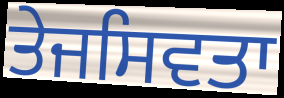
ਤੇਜਸਿਵਤਾ